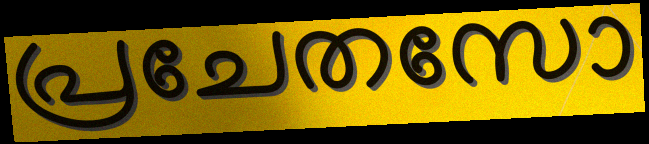
പ്രചേതസോ